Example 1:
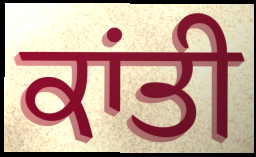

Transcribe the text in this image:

ਕਾਂਤੀ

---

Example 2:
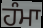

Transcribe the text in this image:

ਹੰਮਾ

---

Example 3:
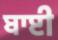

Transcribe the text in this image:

ਬਾਈ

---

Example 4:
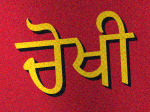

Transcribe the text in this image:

ਚੋਖੀ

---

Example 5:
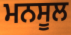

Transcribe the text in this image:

ਮਨਸੂਲ